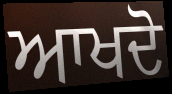
ਆਖਦੋ